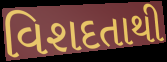
વિશદતાથી